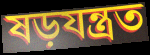
ষড়যন্ত্ৰত